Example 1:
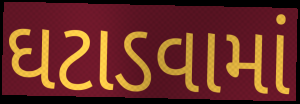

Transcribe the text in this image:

ઘટાડવામાં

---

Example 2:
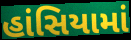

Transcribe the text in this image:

હાંસિયામાં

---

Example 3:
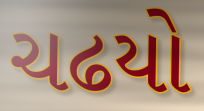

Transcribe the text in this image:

ચઢયો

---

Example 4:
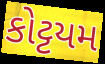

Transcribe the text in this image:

કોટ્ટયમ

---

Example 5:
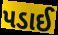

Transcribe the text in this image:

પડાઈ